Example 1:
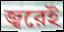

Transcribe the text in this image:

জ্বরেই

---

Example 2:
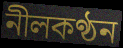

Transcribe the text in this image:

নীলকণ্ঠন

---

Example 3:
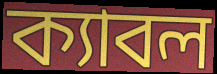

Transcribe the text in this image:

ক্যাবল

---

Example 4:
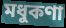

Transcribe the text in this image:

মধুকণা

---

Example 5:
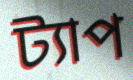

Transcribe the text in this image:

ট্যাপ